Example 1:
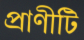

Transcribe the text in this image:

প্রাণীটি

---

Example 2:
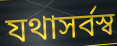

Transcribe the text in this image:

যথাসর্বস্ব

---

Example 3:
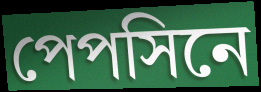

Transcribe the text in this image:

পেপসিনে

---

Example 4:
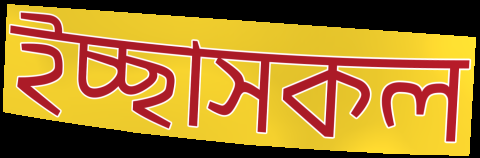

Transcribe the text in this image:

ইচ্ছাসকল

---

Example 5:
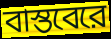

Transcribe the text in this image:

বাস্তবেরে